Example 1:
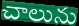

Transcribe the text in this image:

చాలును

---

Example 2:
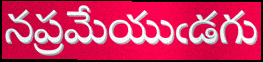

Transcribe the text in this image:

నప్రమేయుఁడగు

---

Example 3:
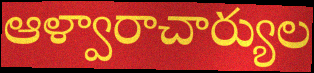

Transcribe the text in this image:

ఆళ్వారాచార్యుల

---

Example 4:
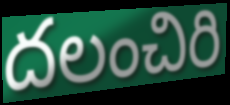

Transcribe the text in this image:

దలంచిరి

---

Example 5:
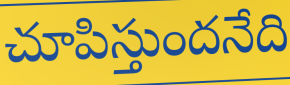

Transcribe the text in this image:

చూపిస్తుందనేది